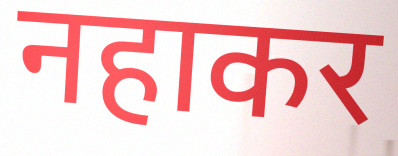
नहाकर